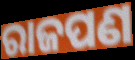
ରାଜପଣ